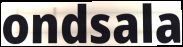
ondsala